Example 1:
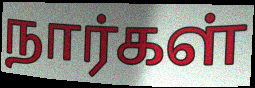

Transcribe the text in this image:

நார்கள்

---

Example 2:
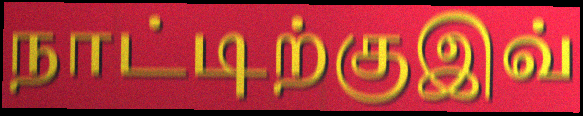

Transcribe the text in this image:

நாட்டிற்குஇவ்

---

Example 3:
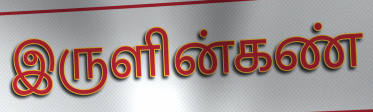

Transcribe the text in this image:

இருளின்கண்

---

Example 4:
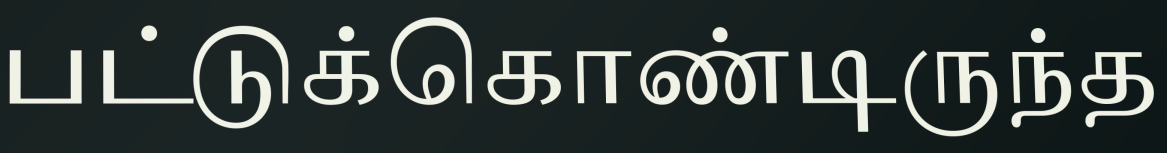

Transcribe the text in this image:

பட்டுக்கொண்டிருந்த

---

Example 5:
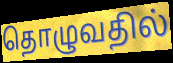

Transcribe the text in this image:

தொழுவதில்